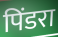
पिंडरा